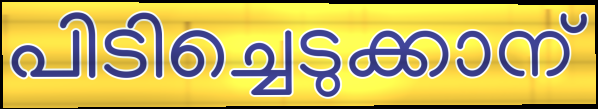
പിടിച്ചെടുക്കാന്